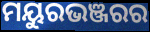
ମୟୁରଭଞ୍ଜରର